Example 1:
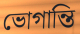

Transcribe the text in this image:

ভোগান্তি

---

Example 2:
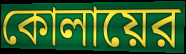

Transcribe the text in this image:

কোলায়ের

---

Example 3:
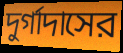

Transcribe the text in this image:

দুর্গাদাসের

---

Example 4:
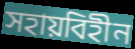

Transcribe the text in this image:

সহায়বিহীন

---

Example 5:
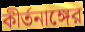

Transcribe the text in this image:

কীর্তনাঙ্গের